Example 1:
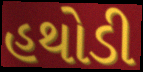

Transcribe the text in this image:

હથોડી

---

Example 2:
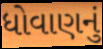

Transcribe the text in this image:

ધોવાણનું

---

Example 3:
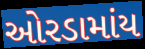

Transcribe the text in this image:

ઓરડામાંય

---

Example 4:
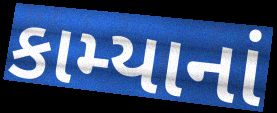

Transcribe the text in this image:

કામ્યાનાં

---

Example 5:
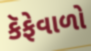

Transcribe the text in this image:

કૅફેવાળો